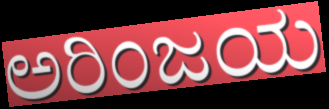
ಅರಿಂಜಯ